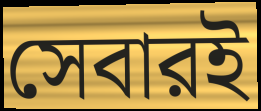
সেবারই